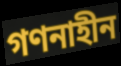
গণনাহীন